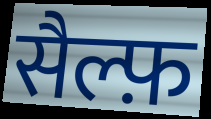
सैल्फ़